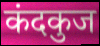
कंदकुज